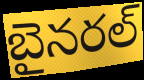
బైనరల్